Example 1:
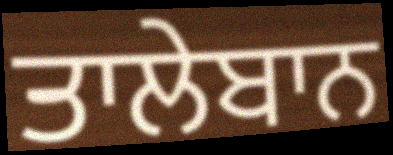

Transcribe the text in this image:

ਤਾਲੇਬਾਨ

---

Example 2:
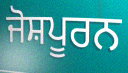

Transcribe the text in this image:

ਜੋਸ਼ਪੂਰਨ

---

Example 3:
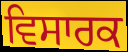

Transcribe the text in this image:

ਵਿਸਾਰਕ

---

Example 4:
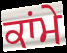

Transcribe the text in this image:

ਕਾਂਮੇ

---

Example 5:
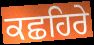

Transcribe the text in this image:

ਕਛਹਿਰੇ